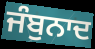
ਜੰਬੁਨਾਦ